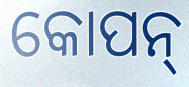
କୋପନ୍